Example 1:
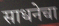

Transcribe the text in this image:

साधनेचा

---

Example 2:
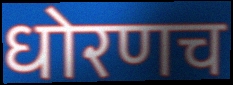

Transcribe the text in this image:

धोरणच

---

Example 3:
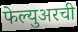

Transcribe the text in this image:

फेल्युअरची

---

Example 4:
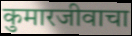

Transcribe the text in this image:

कुमारजीवाचा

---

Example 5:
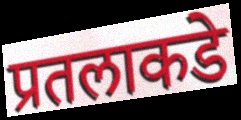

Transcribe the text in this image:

प्रतलाकडे